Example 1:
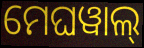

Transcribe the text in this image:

ମେଘୱାଲ୍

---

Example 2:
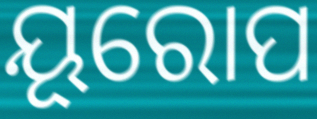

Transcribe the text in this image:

ୟୂରୋପ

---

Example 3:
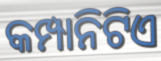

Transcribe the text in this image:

କମ୍ପାନିଟିଏ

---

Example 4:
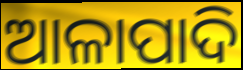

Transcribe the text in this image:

ଆଳାପାଦି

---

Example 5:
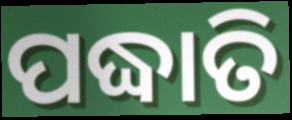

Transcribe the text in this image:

ପଦ୍ଧାତି